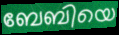
ബേബിയെ